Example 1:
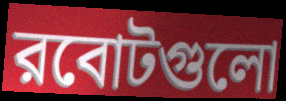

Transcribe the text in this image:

রবোটগুলো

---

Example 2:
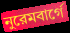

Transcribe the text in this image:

নুরেমবার্গে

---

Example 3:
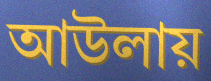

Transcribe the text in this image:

আউলায়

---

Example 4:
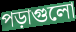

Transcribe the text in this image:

পড়াগুলো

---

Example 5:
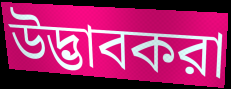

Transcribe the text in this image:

উদ্ভাবকরা